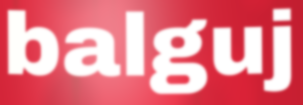
balguj